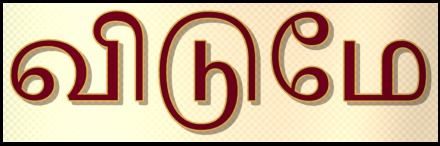
விடுமே